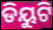
ଡିୟୁଟି